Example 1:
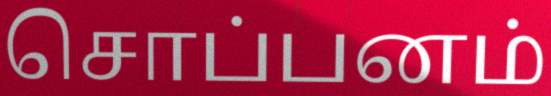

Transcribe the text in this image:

சொப்பனம்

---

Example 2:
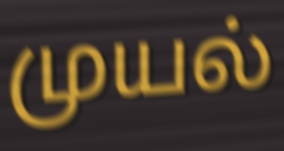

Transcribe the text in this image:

முயல்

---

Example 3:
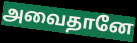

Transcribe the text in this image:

அவைதானே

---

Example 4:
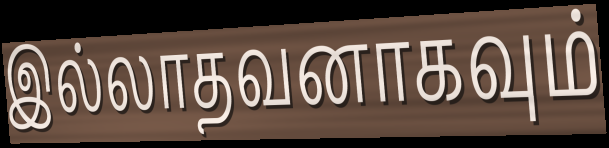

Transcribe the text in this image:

இல்லாதவனாகவும்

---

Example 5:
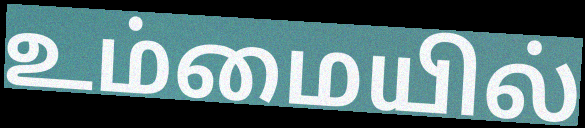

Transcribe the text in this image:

உம்மையில்